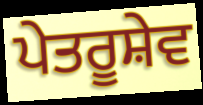
ਪੇਤਰੂਸ਼ੇਵ